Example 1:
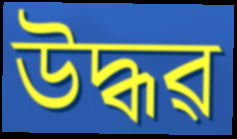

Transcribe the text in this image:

উদ্ধৱ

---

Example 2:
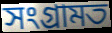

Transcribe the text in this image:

সংগ্ৰামত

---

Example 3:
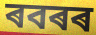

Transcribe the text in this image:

ৰবৰৰ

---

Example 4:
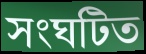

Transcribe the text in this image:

সংঘটিত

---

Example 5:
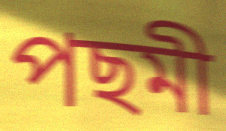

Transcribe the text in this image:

পছমী